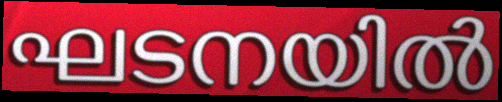
ഘടനയിൽ